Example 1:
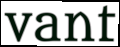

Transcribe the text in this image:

vant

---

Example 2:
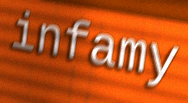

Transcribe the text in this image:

infamy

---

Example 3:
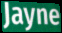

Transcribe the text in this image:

Jayne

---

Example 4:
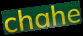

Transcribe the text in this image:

chahe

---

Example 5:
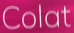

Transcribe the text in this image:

Colat